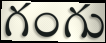
గంగు